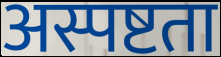
अस्पष्टता